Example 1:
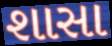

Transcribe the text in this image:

શાસા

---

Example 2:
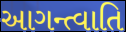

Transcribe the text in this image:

આગન્ત્વાતિ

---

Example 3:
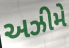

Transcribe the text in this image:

અઝીમે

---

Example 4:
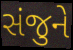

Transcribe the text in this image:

સંજુને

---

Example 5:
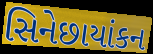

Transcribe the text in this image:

સિનેછાયાંકન